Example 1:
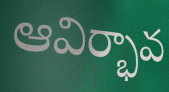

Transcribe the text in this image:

ఆవిర్భావ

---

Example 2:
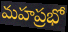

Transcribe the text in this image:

మహప్రభో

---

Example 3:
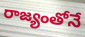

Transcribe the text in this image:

రాజ్యంతోనే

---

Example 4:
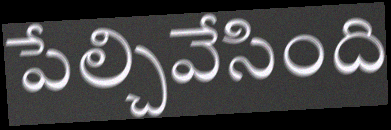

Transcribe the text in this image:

పేల్చివేసింది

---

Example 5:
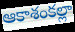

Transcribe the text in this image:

ఆకాశంకల్లా